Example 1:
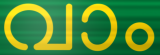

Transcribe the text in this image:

വാം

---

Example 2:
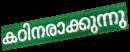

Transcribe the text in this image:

കഠിനരാക്കുന്നു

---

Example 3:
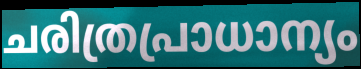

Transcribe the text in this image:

ചരിത്രപ്രാധാന്യം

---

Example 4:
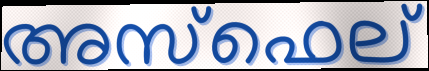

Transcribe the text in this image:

അസ്ഫെല്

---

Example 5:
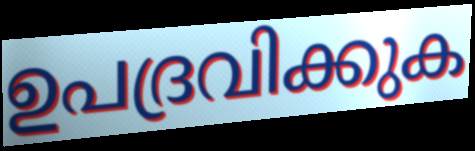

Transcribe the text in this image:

ഉപദ്രവിക്കുക